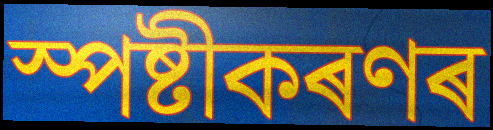
স্পষ্টীকৰণৰ